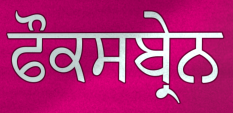
ਫੌਕਸਬ੍ਰੇਨ